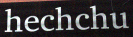
hechchu